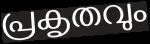
പ്രകൃതവും